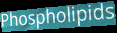
Phospholipids